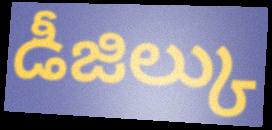
డీజిల్కు